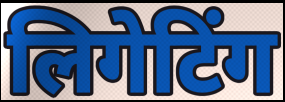
लिगेटिंग